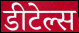
डीटेल्स